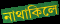
নাথাকিলে